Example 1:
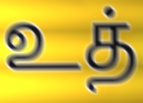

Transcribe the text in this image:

உத்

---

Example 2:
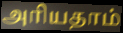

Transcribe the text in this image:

அரியதாம்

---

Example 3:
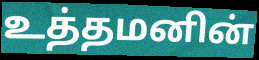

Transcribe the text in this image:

உத்தமனின்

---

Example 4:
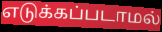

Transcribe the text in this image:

எடுக்கப்படாமல்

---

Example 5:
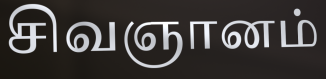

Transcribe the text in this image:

சிவஞானம்